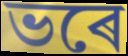
ভৰে